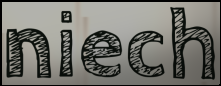
niech